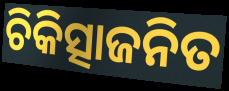
ଚିକିତ୍ସାଜନିତ